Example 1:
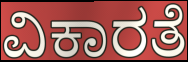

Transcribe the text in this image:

ವಿಕಾರತೆ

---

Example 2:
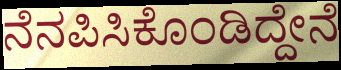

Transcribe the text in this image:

ನೆನಪಿಸಿಕೊಂಡಿದ್ದೇನೆ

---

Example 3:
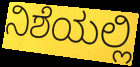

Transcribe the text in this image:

ನಿಶೆಯಲ್ಲಿ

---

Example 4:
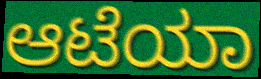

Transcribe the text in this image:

ಆಟೆಯಾ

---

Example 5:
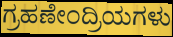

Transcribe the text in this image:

ಗ್ರಹಣೇಂದ್ರಿಯಗಳು